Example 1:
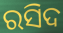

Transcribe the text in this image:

ରସିଦ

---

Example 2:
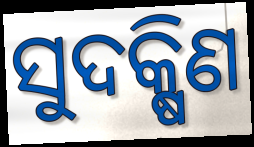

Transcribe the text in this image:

ସୁଦକ୍ଷିଣ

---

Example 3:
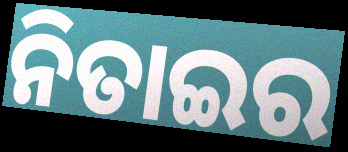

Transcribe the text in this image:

ନିତାଇର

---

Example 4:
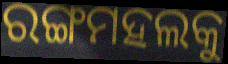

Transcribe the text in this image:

ରଙ୍ଗମହଲକୁ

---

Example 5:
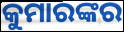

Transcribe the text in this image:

କୁମାରଙ୍କର